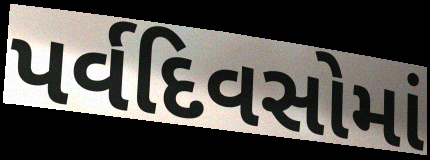
પર્વદિવસોમાં